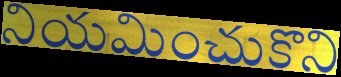
నియమించుకొని